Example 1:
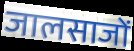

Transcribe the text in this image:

जालसाजों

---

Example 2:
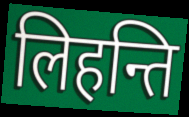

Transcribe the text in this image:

लिहन्ति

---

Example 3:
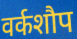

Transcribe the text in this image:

वर्कशौप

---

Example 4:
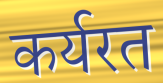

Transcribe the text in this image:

कर्यरत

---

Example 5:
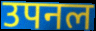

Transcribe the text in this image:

उपनल